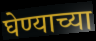
घेण्याच्या